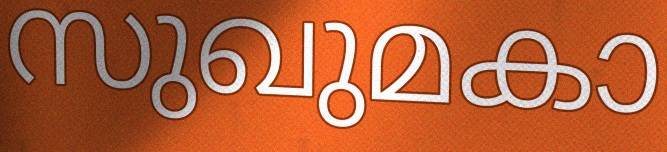
സുഖുമകാ